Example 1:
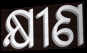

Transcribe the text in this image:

କ୍ଷୀଣ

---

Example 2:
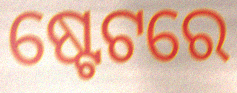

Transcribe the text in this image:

ଷ୍ଟେଟରେ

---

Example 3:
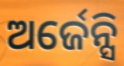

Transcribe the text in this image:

ଅର୍ଜେନ୍ସି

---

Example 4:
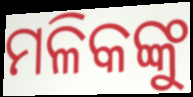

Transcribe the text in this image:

ମଳିକଙ୍କୁ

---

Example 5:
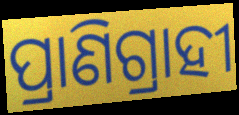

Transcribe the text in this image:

ପ୍ରାଣିଗ୍ରାହୀ